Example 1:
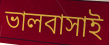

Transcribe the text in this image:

ভালবাসাই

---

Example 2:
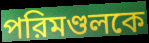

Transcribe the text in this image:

পরিমণ্ডলকে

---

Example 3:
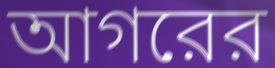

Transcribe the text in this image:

আগরের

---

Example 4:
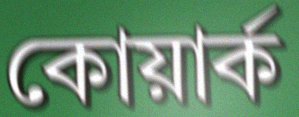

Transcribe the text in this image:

কোয়ার্ক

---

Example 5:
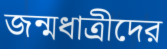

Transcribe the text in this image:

জন্মধাত্রীদের